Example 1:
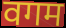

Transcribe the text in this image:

वगम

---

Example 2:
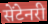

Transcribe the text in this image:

सेंटेनरी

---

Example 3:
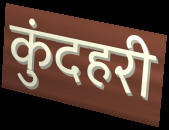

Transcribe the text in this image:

कुंदहरी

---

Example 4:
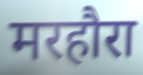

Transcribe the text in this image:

मरहौरा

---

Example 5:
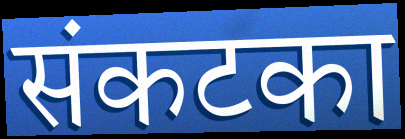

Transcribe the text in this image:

संकटका